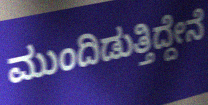
ಮುಂದಿಡುತ್ತಿದ್ದೇನೆ